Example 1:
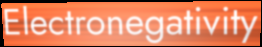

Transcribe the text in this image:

Electronegativity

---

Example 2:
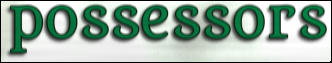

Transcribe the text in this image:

possessors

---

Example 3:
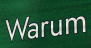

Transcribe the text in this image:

Warum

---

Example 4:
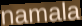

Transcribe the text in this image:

namala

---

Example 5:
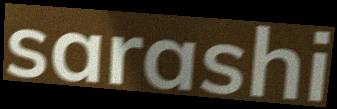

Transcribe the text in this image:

sarashi